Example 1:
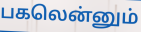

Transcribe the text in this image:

பகலென்னும்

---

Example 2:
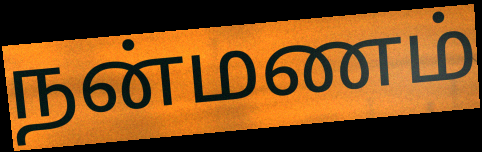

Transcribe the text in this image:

நன்மணம்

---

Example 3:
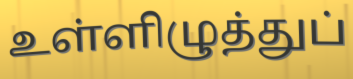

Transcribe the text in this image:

உள்ளிழுத்துப்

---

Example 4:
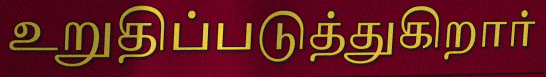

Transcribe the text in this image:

உறுதிப்படுத்துகிறார்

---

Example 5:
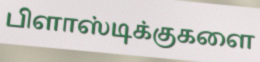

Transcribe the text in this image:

பிளாஸ்டிக்குகளை